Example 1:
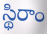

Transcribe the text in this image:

స్థిరాం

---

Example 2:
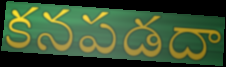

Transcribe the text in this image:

కనపడదా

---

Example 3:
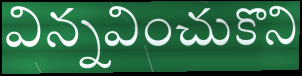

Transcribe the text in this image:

విన్నవించుకొని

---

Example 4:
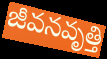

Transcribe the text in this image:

జీవనవృత్తి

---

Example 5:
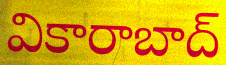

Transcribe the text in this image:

వికారాబాద్